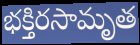
భక్తిరసామృత